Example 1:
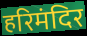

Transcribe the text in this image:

हरिमंदिर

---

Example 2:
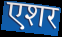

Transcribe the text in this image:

एशर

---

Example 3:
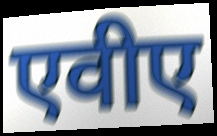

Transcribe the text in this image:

एवीए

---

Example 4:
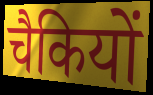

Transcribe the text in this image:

चैकियों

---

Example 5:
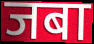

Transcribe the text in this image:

जबा